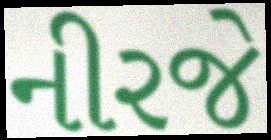
નીરજે